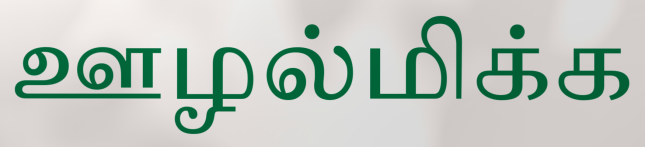
ஊழல்மிக்க